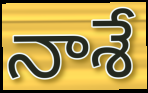
నాశే